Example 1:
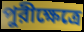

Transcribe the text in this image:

পুরীক্ষেত্রে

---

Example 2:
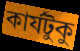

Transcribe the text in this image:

কার্যটুকু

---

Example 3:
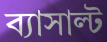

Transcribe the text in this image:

ব্যাসাল্ট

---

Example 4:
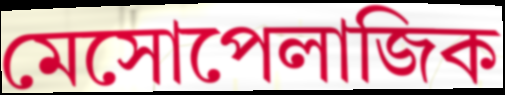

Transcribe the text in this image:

মেসোপেলাজিক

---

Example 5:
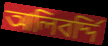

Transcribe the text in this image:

আলিবর্দ্দি